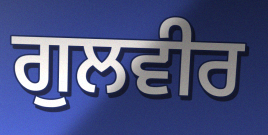
ਗੁਲਵੀਰ